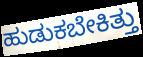
ಹುಡುಕಬೇಕಿತ್ತು